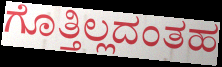
ಗೊತ್ತಿಲ್ಲದಂತಹ